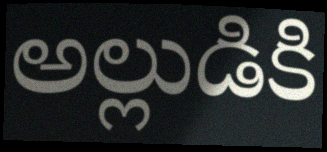
అల్లుడికి